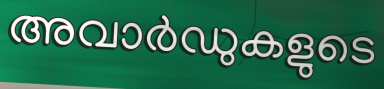
അവാർഡുകളുടെ